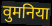
वुमनिया